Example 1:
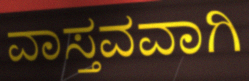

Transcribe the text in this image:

ವಾಸ್ತವವಾಗಿ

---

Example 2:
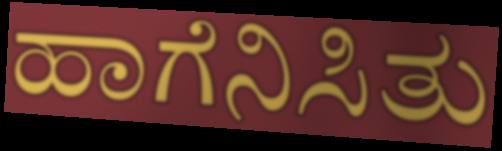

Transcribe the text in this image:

ಹಾಗೆನಿಸಿತು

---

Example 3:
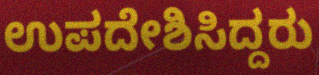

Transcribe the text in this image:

ಉಪದೇಶಿಸಿದ್ದರು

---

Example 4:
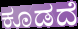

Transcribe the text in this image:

ಕೂಡದೆ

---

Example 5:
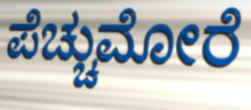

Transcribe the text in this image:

ಪೆಚ್ಚುಮೋರೆ